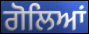
ਗੋਲਿਆਂ